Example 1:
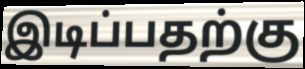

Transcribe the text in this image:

இடிப்பதற்கு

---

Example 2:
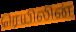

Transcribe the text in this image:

ரெயிலின்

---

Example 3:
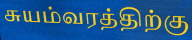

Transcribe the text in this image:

சுயம்வரத்திற்கு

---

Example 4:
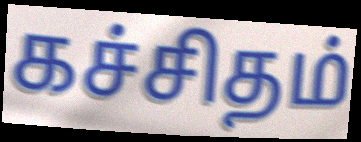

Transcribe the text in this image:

கச்சிதம்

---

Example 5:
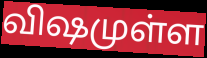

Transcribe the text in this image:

விஷமுள்ள